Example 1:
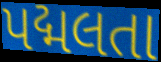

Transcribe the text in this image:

પદ્મલતા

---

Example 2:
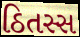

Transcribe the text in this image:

ઠિતસ્સ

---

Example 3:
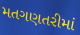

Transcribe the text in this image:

મતગણતરીમાં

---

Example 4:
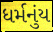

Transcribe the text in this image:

ધર્મનુંય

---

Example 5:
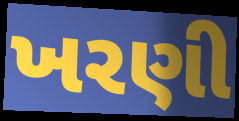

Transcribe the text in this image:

ખરણી